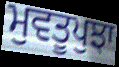
ਮੁਵਤੂਪੁਝਾ